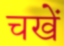
चखें